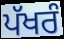
ਪੱਖਰੰ